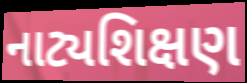
નાટ્યશિક્ષણ